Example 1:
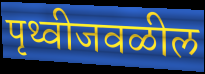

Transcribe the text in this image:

पृथ्वीजवळील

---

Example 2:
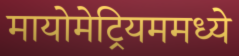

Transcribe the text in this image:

मायोमेट्रियममध्ये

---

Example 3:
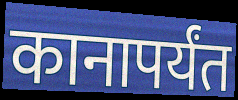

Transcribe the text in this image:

कानापर्यंत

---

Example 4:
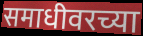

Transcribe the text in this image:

समाधीवरच्या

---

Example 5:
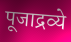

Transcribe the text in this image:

पूजाद्रव्ये